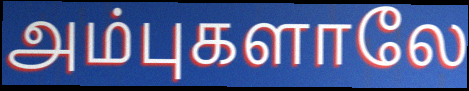
அம்புகளாலே